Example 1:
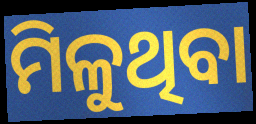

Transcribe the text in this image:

ମିଳୁଥିବା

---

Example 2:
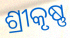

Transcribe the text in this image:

ଶ୍ରୀକୃଷ୍ଣ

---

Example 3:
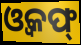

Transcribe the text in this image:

ଓ୍ୱକଫ୍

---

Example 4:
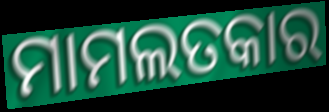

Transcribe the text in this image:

ମାମଲତକାର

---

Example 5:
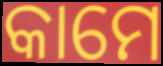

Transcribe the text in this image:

କାମେ